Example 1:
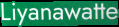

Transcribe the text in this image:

Liyanawatte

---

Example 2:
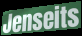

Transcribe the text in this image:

Jenseits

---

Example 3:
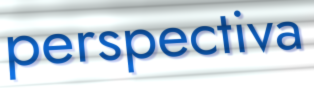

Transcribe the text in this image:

perspectiva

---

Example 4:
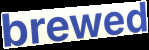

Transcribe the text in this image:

brewed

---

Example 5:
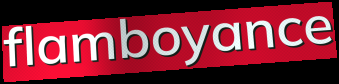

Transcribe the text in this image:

flamboyance